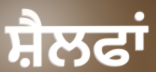
ਸ਼ੈਲਫਾਂ